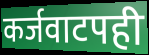
कर्जवाटपही